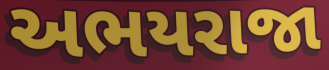
અભયરાજા